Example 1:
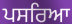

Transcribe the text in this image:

ਪਸਰਿਆ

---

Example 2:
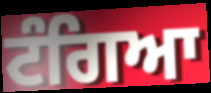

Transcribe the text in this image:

ਟੰਗਿਆ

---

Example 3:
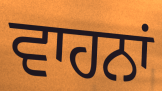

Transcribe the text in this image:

ਵਾਹਨਾਂ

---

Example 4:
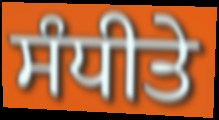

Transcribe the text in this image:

ਸੰਧੀਤੇ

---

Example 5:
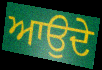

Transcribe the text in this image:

ਆਉਦੇ